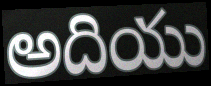
అదియు